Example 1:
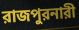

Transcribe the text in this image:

রাজপুরনারী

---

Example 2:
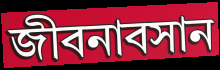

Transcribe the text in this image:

জীবনাবসান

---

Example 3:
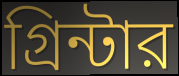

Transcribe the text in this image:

গ্রিন্টার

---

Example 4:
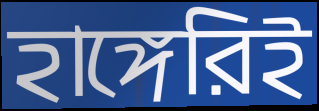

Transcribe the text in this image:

হাঙ্গেরিই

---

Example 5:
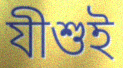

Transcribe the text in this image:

যীশুই